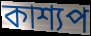
কাশ্যপ